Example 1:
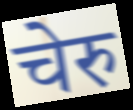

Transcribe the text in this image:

चेरु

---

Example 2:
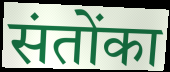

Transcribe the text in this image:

संतोंका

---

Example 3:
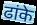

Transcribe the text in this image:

ढांके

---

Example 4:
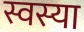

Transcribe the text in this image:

स्वस्या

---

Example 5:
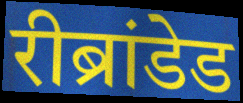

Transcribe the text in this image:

रीब्रांडेड